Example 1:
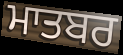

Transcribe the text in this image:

ਮਾਤਬਰ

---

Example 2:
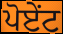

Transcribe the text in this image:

ਪੋਏਂਟ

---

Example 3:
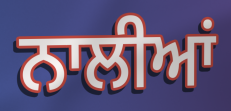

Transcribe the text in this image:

ਨਾਲੀਆਂ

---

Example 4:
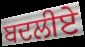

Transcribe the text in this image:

ਬਦਲੀਏ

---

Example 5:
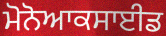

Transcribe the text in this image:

ਮੋਨੋਆਕਸਾਈਡ